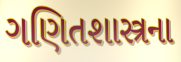
ગણિતશાસ્ત્રના